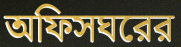
অফিসঘরের